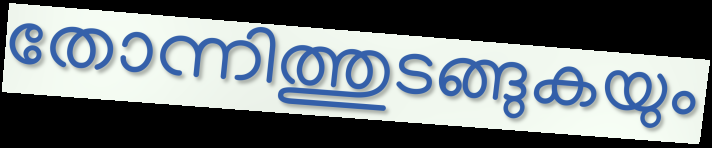
തോന്നിത്തുടങ്ങുകയും